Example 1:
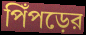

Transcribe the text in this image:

পিঁপড়ের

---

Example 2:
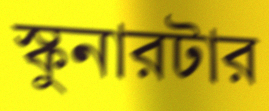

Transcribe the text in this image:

স্কুনারটার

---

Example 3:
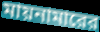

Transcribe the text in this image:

মায়নামারের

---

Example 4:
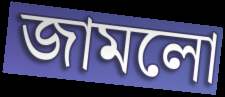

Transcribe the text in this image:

জামলো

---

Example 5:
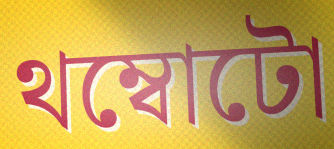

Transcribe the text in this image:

থম্বোটো